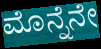
ಮೊನ್ನೆನೇ